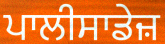
ਪਾਲੀਸਾਡੇਜ਼